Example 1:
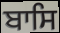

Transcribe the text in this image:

ਬਾਸਿ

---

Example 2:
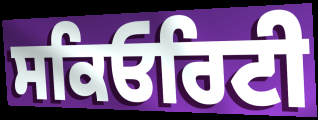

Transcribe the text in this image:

ਸਕਿਓਰਿਟੀ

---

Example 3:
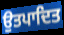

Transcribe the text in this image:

ਉਤਪਾਦਿਤ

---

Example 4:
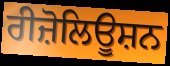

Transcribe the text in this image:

ਰੀਜ਼ੋਲਿਊਸ਼ਨ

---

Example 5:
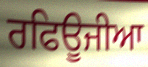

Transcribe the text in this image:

ਰਫਿਊਜੀਆ